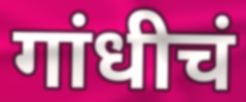
गांधीचं